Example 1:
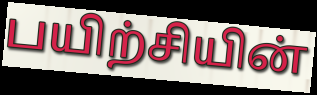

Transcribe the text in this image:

பயிற்சியின்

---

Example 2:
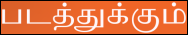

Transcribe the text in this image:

படத்துக்கும்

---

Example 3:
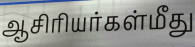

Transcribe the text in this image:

ஆசிரியர்கள்மீது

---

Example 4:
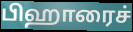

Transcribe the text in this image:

பிஹாரைச்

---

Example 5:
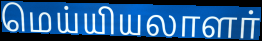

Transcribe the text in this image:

மெய்யியலாளர்